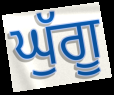
ਘੁੱਗੂ